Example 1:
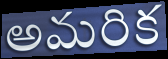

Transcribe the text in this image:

అమరిక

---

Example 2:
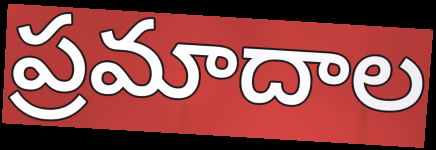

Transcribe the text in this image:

ప్రమాదాల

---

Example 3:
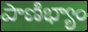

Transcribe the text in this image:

పాణిభ్యాం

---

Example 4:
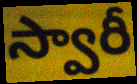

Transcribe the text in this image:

స్వారీ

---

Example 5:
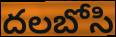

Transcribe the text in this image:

దలబోసి